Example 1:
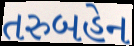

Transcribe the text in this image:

તરુબહેન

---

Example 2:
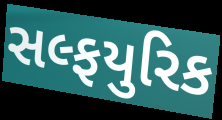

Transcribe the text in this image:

સલ્ફયુરિક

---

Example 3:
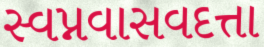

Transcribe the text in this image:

સ્વપ્નવાસવદત્તા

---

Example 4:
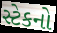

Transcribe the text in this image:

સ્ટેકનો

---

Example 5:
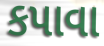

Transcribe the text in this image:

કપાવા